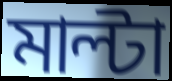
মাল্টা